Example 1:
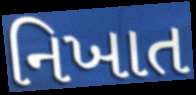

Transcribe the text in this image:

નિખાત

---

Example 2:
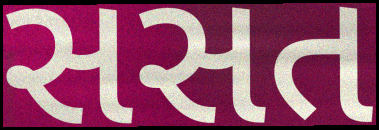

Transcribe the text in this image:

સસત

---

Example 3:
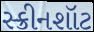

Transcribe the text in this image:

સ્ક્રીનશૉટ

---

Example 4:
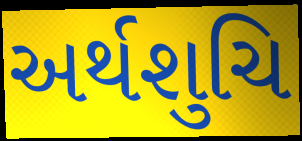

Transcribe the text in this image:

અર્થશુચિ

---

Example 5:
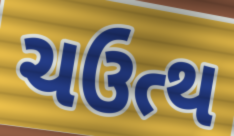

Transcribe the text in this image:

ચઉત્થ